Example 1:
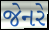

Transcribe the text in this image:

જેનરે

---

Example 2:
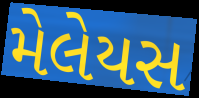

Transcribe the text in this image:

મેલેયસ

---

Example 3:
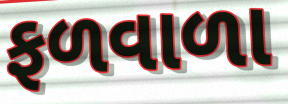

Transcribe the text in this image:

ફળવાળા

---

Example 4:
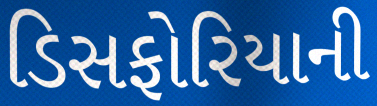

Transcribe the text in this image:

ડિસફોરિયાની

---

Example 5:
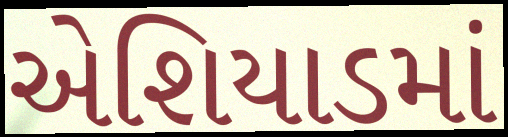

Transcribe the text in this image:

એશિયાડમાં